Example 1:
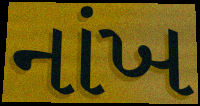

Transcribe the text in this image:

નાંખ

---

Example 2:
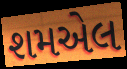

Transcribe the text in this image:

શમએલ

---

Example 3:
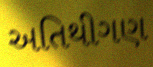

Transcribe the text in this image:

અતિથીગણ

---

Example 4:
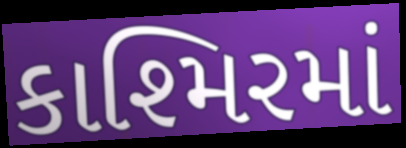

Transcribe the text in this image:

કાશ્મિરમાં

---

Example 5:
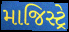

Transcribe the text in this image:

માજિસ્ટ્રે